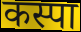
कस्पा